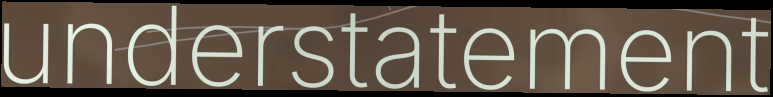
understatement